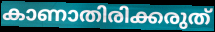
കാണാതിരിക്കരുത്